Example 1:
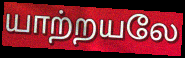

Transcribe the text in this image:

யாற்றயலே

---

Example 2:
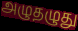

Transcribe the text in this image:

அழுதழுது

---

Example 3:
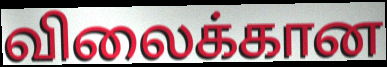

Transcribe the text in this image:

விலைக்கான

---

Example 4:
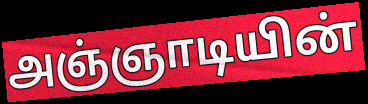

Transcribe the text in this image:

அஞ்ஞாடியின்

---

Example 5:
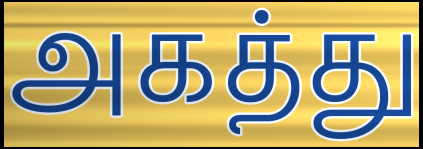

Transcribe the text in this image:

அகத்து